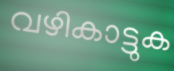
വഴികാട്ടുക